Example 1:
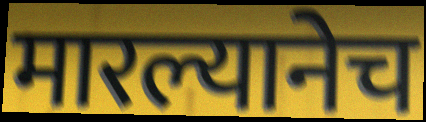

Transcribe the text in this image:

मारल्यानेच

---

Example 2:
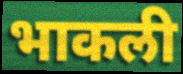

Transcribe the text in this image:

भाकली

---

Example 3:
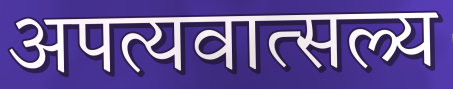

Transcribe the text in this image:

अपत्यवात्सल्य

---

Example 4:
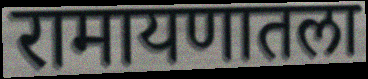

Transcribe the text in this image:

रामायणातला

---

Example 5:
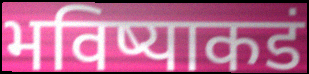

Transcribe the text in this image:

भविष्याकडं